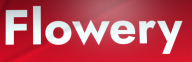
Flowery